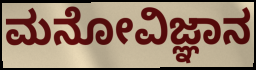
ಮನೋವಿಜ್ಞಾನ